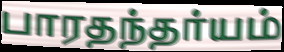
பாரதந்தர்யம்